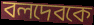
বলদেবকে